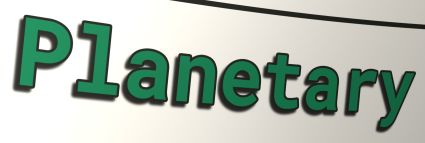
Planetary